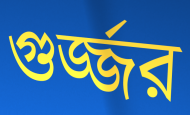
গুর্জ্জর